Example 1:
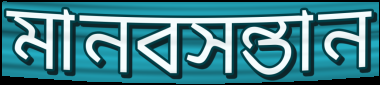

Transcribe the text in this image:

মানবসন্তান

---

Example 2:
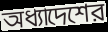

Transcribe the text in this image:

অধ্যাদেশের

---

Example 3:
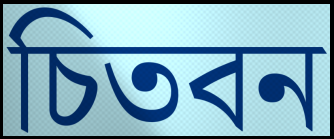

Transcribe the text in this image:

চিতবন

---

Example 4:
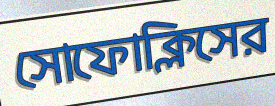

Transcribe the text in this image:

সোফোক্লিসের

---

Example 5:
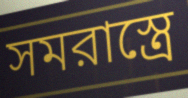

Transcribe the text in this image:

সমরাস্ত্রে